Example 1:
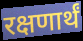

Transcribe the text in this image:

रक्षणार्थं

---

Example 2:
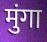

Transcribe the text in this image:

मुंगा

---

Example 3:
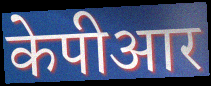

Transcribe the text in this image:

केपीआर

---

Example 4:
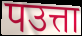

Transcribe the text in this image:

पउत्ता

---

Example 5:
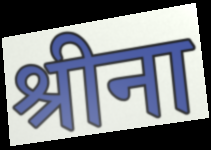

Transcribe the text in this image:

श्रीना